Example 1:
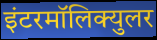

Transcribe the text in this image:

इंटरमॉलिक्युलर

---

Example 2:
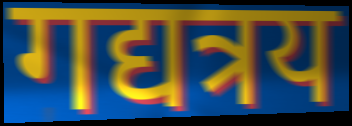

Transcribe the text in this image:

गद्यत्रय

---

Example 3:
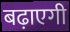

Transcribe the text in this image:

बढ़ाएगी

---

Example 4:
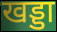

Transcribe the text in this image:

खड्डा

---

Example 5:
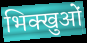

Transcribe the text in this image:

भिक्खुओं